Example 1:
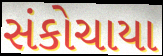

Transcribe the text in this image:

સંકોચાયા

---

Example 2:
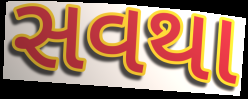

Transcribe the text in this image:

સવથા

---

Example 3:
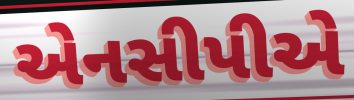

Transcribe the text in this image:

એનસીપીએ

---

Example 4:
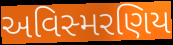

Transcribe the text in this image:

અવિસ્મરણિય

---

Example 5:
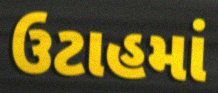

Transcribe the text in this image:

ઉટાહમાં